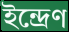
ইন্দ্রেণ